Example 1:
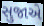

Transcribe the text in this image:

સુજાએ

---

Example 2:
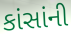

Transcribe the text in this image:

કાંસાંની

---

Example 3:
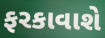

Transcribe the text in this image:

ફરકાવાશે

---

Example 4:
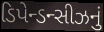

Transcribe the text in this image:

ડિપેન્ડન્સીઝનું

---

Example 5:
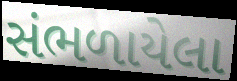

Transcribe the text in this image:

સંભળાયેલા